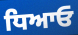
ਧਿਆਓ